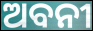
ଅବନୀ